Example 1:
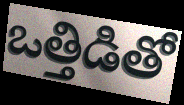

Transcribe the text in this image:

ఒత్తిడితో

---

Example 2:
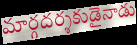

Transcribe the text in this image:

మార్గదర్శకుడైనాడు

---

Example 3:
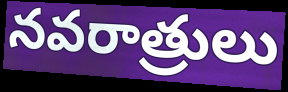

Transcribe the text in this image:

నవరాత్రులు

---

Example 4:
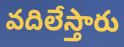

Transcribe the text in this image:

వదిలేస్తారు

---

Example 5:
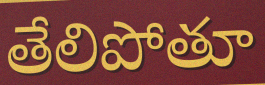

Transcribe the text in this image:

తేలిపోతూ